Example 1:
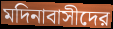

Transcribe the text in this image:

মদিনাবাসীদের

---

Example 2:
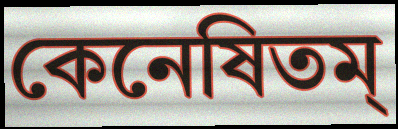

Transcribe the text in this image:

কেনেষিতম্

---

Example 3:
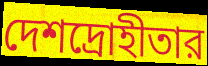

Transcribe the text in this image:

দেশদ্রোহীতার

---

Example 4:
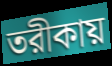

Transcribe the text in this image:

তরীকায়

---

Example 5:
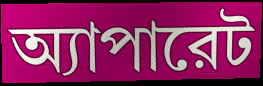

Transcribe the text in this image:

অ্যাপারেট